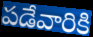
పడేవారికి